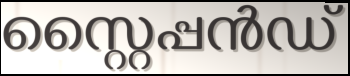
സ്റ്റൈപ്പൻഡ്